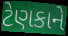
ટેણકાને